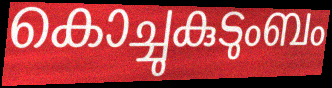
കൊച്ചുകുടുംബം